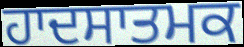
ਹਾਦਸਾਤਮਕ